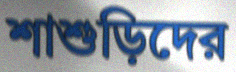
শাশুড়িদের